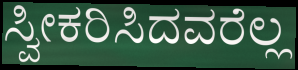
ಸ್ವೀಕರಿಸಿದವರೆಲ್ಲ